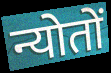
न्योतों